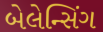
બેલેન્સિંગ